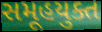
સમૂહયુક્ત